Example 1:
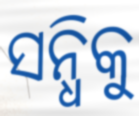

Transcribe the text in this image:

ସନ୍ଧିକୁ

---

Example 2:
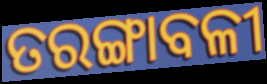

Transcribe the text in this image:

ତରଙ୍ଗାବଳୀ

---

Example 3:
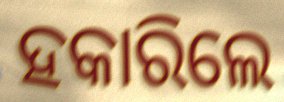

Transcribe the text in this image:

ହକାରିଲେ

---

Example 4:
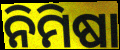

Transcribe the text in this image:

ନିମିଷା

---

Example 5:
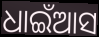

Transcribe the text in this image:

ଧାଇଁଆସ